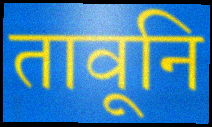
तावूनि